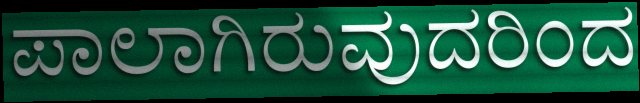
ಪಾಲಾಗಿರುವುದರಿಂದ